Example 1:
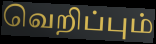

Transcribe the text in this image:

வெறிப்பும்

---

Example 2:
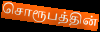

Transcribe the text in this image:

சொரூபத்தின்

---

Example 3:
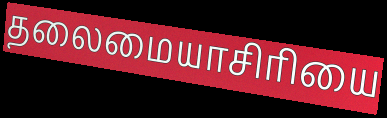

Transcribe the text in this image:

தலைமையாசிரியை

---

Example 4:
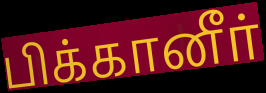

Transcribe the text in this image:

பிக்கானீர்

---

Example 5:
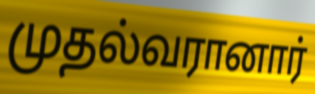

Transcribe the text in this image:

முதல்வரானார்